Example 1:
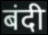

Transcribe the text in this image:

बंदी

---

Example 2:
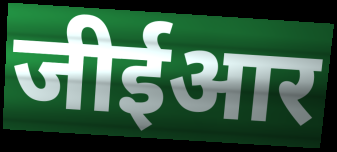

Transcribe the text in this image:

जीईआर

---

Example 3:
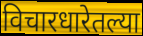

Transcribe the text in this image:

विचारधारेतल्या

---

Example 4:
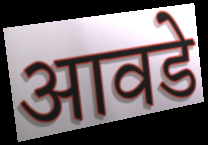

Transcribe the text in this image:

आवडे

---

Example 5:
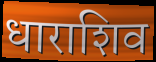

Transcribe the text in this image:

धाराशिव